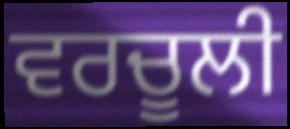
ਵਰਚੂਲੀ